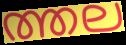
ത്തല